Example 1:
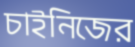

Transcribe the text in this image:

চাইনিজের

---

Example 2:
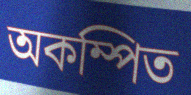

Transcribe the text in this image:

অকম্পিত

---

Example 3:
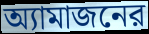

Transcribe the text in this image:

অ্যামাজনের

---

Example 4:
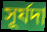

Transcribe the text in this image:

সূর্যদা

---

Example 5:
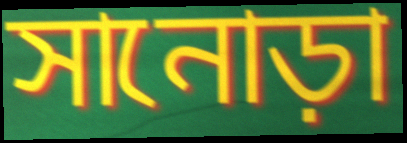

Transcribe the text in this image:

সানোড়া